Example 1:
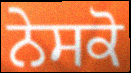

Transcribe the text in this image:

ਨੇਸਕੋ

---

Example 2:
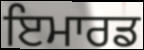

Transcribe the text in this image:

ਇਮਾਰਡ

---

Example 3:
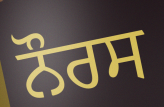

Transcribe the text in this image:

ਨੌਰਸ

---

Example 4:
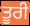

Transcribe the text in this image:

ਤੂਰੀ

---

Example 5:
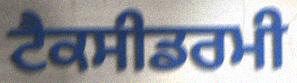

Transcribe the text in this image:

ਟੈਕਸੀਡਰਮੀ